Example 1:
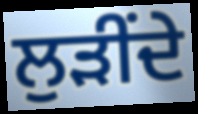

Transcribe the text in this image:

ਲੁੜੀਂਦੇ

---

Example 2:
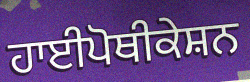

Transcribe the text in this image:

ਹਾਈਪੋਥੀਕੇਸ਼ਨ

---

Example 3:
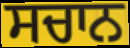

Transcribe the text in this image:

ਸਚਾਨ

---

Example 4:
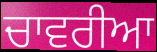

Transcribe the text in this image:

ਚਾਵਰੀਆ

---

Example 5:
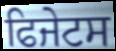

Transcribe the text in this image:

ਫਿਜੇਟਸ